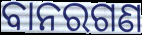
ବାନରଗଣ